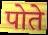
पोते